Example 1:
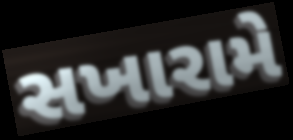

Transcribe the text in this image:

સખારામે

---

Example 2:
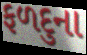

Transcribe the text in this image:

ફળદુના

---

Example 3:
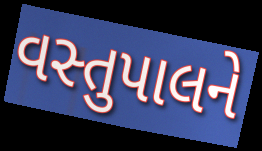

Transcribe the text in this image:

વસ્તુપાલને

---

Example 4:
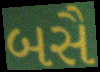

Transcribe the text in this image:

બસૈ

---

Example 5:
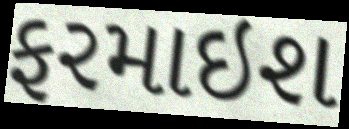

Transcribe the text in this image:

ફરમાઇશ